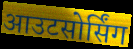
आउटसोर्सिंग